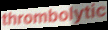
thrombolytic